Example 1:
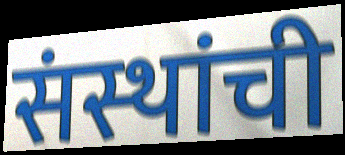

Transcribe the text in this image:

संस्थांची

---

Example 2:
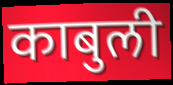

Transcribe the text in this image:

काबुली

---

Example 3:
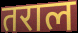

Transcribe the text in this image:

तराल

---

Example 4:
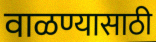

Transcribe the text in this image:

वाळण्यासाठी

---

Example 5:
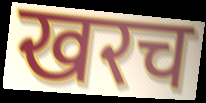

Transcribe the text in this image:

खरच